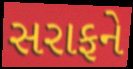
સરાફને